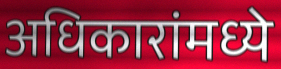
अधिकारांमध्ये